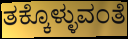
ತಕ್ಕೊಳ್ಳುವಂತೆ